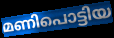
മണിപൊട്ടിയ